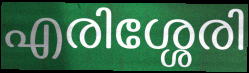
എരിശ്ശേരി